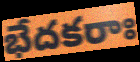
భేదకరాః